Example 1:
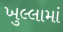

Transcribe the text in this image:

ખુલ્લામાં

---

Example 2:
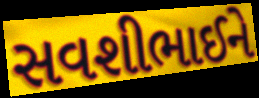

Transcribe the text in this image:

સવશીભાઈને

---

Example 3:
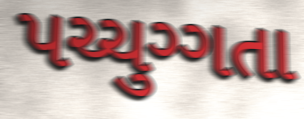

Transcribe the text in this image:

પચ્ચુગ્ગતા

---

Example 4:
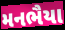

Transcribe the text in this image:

મનભૈયા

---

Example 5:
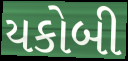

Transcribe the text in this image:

યકોબી